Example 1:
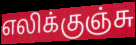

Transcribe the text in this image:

எலிக்குஞ்சு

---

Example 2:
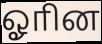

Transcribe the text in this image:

ஓரின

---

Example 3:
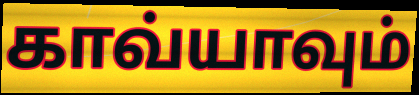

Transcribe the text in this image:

காவ்யாவும்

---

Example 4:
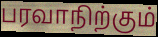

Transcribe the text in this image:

பரவாநிற்கும்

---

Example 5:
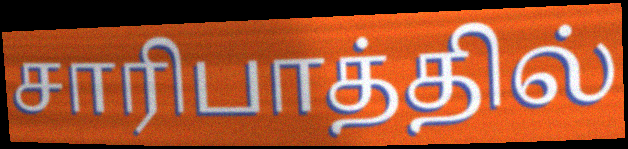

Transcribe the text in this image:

சாரிபாத்தில்